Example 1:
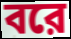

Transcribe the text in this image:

বরে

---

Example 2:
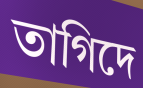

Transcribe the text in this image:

তাগিদে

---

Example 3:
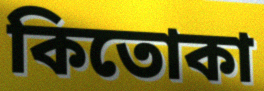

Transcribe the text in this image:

কিতোকা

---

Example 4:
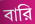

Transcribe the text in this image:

বারি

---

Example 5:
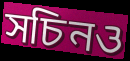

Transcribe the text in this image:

সচিনও